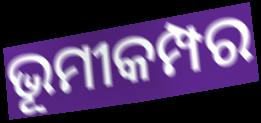
ଭୂମୀକମ୍ପର